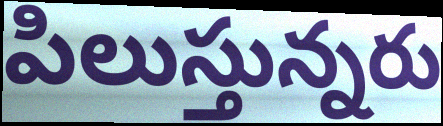
పిలుస్తున్నరు